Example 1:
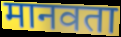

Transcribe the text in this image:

मानवता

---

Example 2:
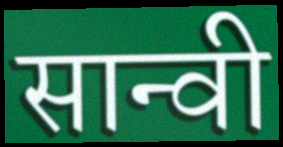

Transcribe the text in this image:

सान्वी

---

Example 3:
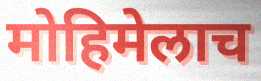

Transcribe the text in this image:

मोहिमेलाच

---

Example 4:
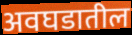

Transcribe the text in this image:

अवघडातील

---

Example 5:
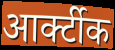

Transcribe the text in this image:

आर्क्टीक